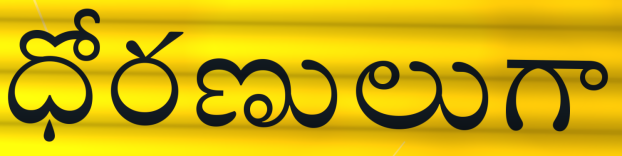
ధోరణులుగా